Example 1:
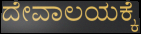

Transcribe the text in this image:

ದೇವಾಲಯಕ್ಕೆ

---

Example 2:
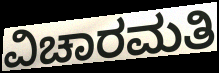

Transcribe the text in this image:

ವಿಚಾರಮತಿ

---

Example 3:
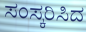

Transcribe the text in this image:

ಸಂಸ್ಕರಿಸಿದ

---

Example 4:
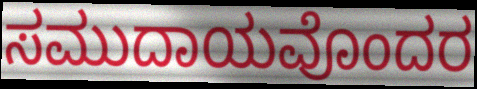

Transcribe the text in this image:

ಸಮುದಾಯವೊಂದರ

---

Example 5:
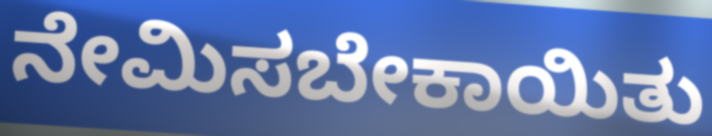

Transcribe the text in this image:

ನೇಮಿಸಬೇಕಾಯಿತು